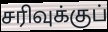
சரிவுக்குப்